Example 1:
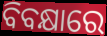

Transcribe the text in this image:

ବିବକ୍ଷାରେ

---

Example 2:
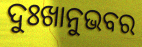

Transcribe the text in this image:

ଦୁଃଖାନୁଭବର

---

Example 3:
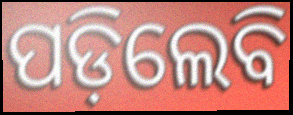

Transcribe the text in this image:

ପଡ଼ିଲେବି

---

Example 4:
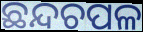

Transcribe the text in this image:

ଛନ୍ଦଚପଳ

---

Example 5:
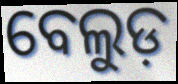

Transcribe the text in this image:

ବେଲୁଡ଼